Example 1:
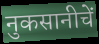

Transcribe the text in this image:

नुकसानीचें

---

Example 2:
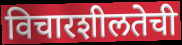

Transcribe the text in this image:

विचारशीलतेची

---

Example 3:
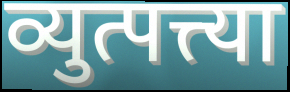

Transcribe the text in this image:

व्युत्पत्त्या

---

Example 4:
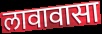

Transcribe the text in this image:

लावावासा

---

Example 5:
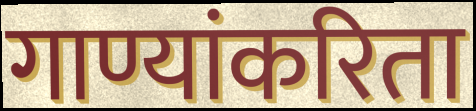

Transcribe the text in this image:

गाण्यांकरिता